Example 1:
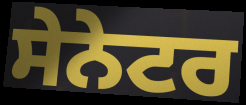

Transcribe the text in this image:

ਸੇਨੇਟਰ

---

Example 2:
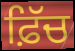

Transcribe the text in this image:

ਫ਼ਿੱਚ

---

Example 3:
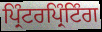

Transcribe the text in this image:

ਪ੍ਰਿੰਟਰਪ੍ਰਿੰਟਿੰਗ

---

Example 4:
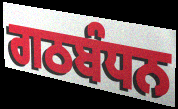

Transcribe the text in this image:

ਗਠਬੰਧਨ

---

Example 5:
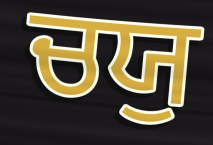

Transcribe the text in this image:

ਚਯੁ